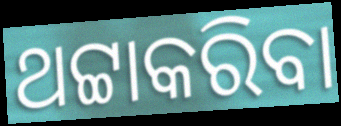
ଥଟ୍ଟାକରିବା